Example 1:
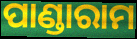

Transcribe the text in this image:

ପାଣ୍ଡାରାମ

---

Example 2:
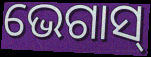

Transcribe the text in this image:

ଭେଗାସ୍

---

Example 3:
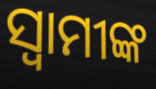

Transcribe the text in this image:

ସ୍ୱାମୀଙ୍କ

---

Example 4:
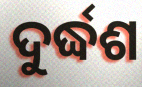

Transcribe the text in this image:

ଦୁର୍ଦ୍ଧଶ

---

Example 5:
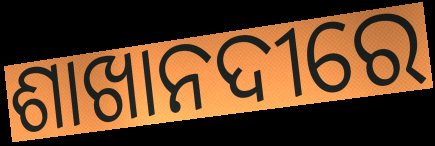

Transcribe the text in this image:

ଶାଖାନଦୀରେ